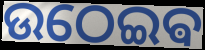
ଉଠେଇଵ